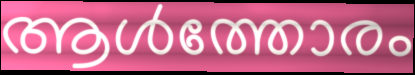
ആൾത്തോരം